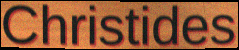
Christides